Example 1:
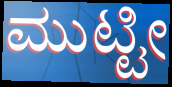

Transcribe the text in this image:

ಮುಟ್ಟೀ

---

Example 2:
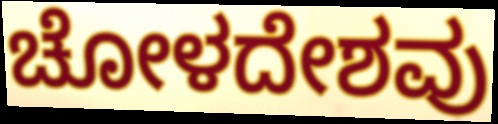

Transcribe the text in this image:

ಚೋಳದೇಶವು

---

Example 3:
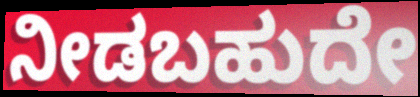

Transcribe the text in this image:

ನೀಡಬಹುದೇ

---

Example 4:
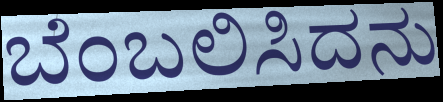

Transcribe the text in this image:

ಬೆಂಬಲಿಸಿದನು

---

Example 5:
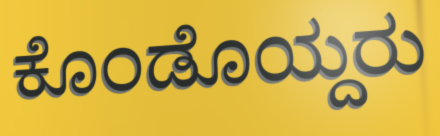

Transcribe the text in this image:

ಕೊಂಡೊಯ್ದರು